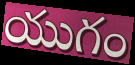
యుగం